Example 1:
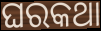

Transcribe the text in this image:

ଘରକଥା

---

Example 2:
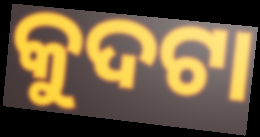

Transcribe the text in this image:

କୁଦଟା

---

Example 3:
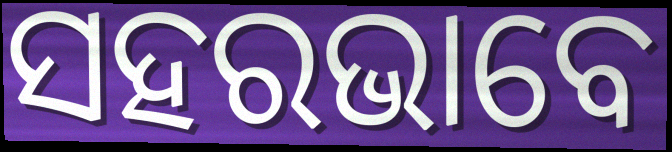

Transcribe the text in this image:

ସହରଭାବେ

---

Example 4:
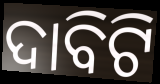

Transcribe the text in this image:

ଦାବିଟି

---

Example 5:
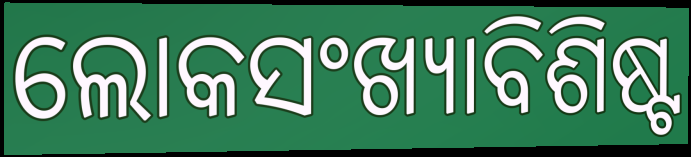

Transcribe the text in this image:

ଲୋକସଂଖ୍ୟାବିଶିଷ୍ଟ